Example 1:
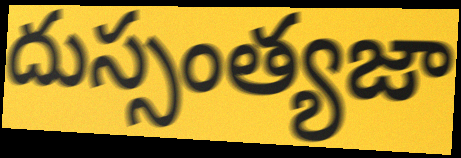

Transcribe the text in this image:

దుస్సంత్యజా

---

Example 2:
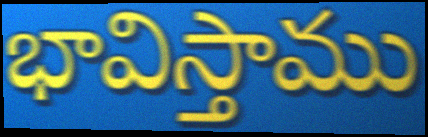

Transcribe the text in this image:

భావిస్తాము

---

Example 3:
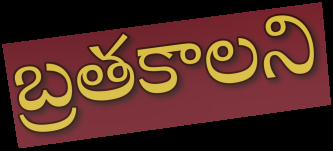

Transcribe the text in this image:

బ్రతకాలని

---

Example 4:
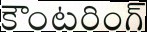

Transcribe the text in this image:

కౌంటరింగ్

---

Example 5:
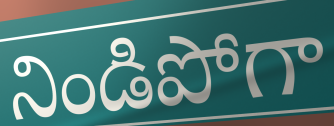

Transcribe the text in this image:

నిండిపోగా